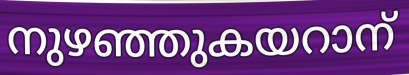
നുഴഞ്ഞുകയറാന്